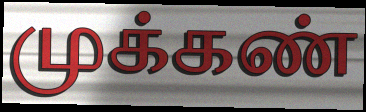
முக்கண்